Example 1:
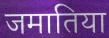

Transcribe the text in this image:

जमातिया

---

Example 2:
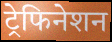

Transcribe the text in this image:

ट्रेफिनेशन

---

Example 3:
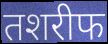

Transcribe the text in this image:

तशरीफ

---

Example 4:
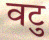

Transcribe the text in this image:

वटु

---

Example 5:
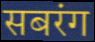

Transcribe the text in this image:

सबरंग